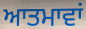
ਆਤਮਾਵਾਂ